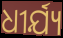
ଧୀର୍ଯ୍ୟ